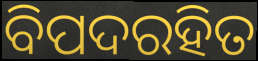
ବିପଦରହିତ